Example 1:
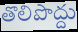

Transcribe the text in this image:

తొలిపొద్దు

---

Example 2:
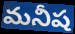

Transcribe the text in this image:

మనీష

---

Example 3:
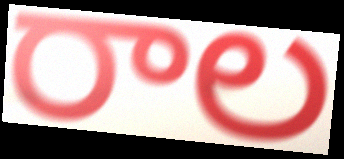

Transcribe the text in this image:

రాల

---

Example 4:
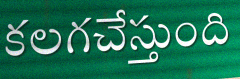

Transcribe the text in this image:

కలగచేస్తుంది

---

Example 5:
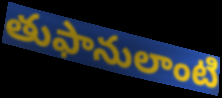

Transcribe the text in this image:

తుఫానులాంటి